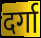
दर्गा